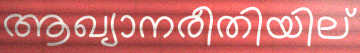
ആഖ്യാനരീതിയില്